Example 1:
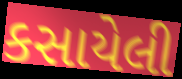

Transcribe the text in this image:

કસાયેલી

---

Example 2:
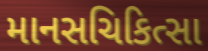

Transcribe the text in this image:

માનસચિકિત્સા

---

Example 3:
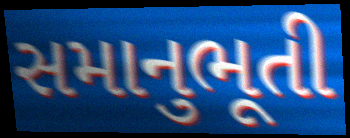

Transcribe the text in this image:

સમાનુભૂતી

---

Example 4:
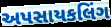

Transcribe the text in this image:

અપસાયકલિંગ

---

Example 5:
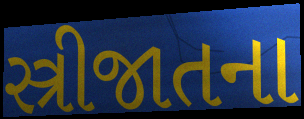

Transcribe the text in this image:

સ્ત્રીજાતના